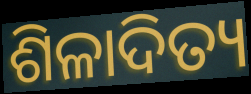
ଶିଳାଦିତ୍ୟ